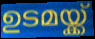
ഉടമയ്ക്ക്